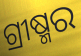
ଗ୍ରୀଷ୍ମର